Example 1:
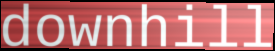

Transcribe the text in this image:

downhill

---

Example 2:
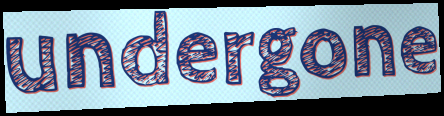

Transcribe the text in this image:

undergone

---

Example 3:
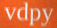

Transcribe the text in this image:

vdpy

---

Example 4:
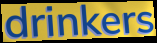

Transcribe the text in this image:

drinkers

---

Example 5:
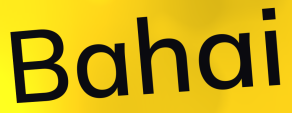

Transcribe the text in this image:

Bahai